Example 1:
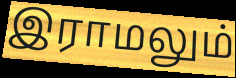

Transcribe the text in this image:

இராமலும்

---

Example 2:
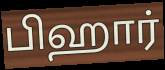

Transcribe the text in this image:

பிஹார்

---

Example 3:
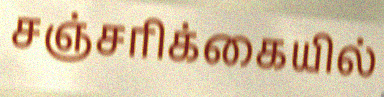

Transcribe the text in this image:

சஞ்சரிக்கையில்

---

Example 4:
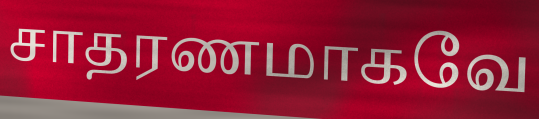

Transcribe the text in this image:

சாதரணமாகவே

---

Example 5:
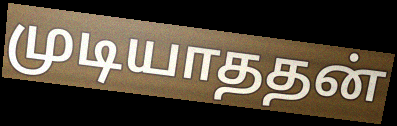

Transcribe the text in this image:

முடியாததன்